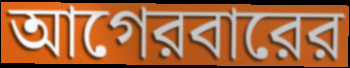
আগেরবারের